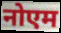
नोएम